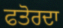
ਫਤੋਰਦਾ